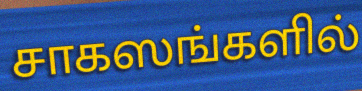
சாகஸங்களில்